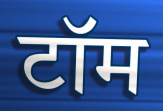
टॉम